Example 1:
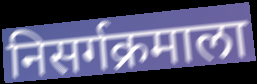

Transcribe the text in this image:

निसर्गक्रमाला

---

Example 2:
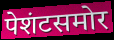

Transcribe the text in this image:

पेशंटसमोर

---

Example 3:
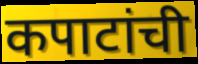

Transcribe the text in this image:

कपाटांची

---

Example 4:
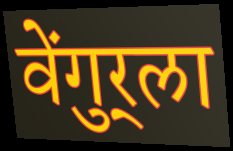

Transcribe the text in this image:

वेंगुर्ला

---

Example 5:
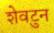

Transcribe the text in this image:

शेवटुन